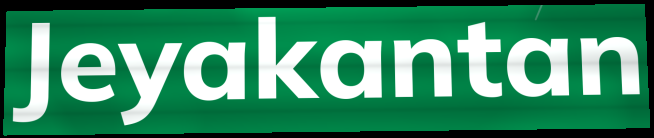
Jeyakantan